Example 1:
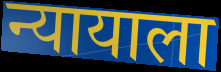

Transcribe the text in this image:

न्यायाला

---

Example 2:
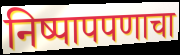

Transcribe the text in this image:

निष्पापपणाचा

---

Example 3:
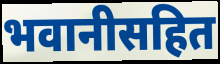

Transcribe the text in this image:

भवानीसहित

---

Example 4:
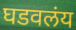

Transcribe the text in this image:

घडवलंय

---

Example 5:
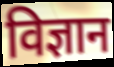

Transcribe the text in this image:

विज्ञान